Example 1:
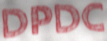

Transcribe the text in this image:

DPDC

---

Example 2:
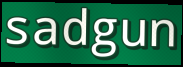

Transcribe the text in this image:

sadgun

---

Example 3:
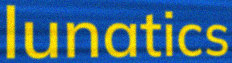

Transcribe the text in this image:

lunatics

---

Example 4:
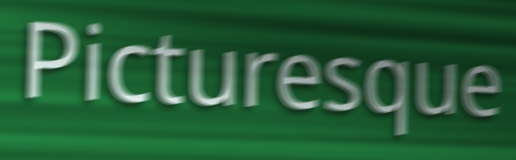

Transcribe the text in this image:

Picturesque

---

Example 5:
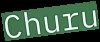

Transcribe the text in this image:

Churu